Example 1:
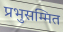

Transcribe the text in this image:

प्रभुसम्मित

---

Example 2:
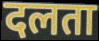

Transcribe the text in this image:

दलता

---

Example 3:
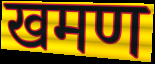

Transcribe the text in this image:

खमण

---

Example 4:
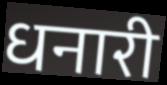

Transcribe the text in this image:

धनारी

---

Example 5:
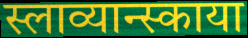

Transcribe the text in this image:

स्लाव्यान्स्काया